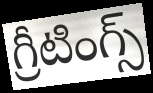
గ్రీటింగ్స్